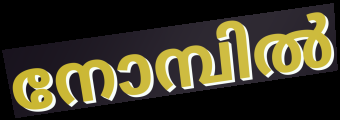
നോമ്പിൽ